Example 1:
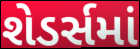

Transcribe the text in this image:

શેડર્સમાં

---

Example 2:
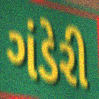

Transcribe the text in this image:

ગંડેરી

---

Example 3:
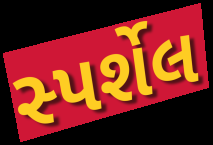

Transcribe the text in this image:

સ્પર્શેલ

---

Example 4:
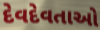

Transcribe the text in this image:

દેવદેવતાઓ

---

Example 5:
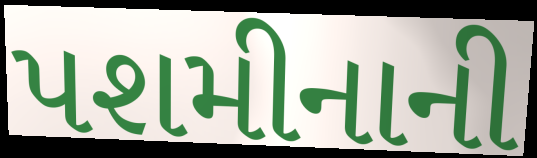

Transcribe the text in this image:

પશમીનાની